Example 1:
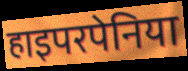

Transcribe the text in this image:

हाइपरपेनिया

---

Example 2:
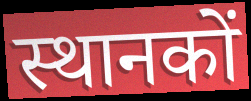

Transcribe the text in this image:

स्थानकों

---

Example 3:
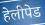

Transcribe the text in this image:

हेलीपेड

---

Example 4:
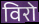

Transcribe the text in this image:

विरो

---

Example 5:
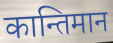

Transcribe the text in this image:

कान्तिमान